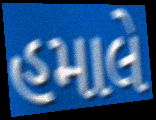
હમાલે